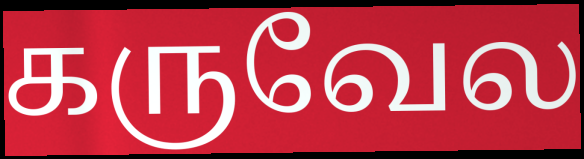
கருவேல